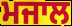
ਮਜਾਲ